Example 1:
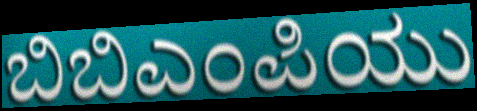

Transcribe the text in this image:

ಬಿಬಿಎಂಪಿಯು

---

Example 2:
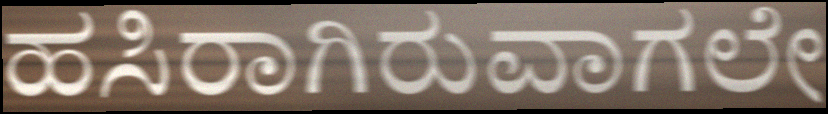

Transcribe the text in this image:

ಹಸಿರಾಗಿರುವಾಗಲೇ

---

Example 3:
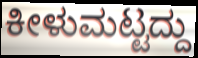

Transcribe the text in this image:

ಕೀಳುಮಟ್ಟದ್ದು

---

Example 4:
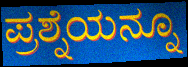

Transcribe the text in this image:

ಪ್ರಶ್ನೆಯನ್ನೂ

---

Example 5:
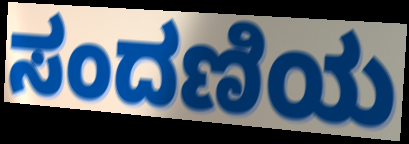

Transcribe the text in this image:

ಸಂದಣಿಯ